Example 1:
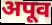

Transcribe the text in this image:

अपूव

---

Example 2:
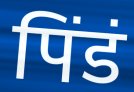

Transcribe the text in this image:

पिंडं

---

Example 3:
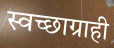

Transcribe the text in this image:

स्वच्छाग्राही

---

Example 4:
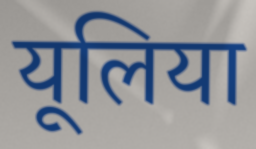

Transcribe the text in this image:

यूलिया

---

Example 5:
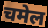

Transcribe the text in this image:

चमेल